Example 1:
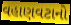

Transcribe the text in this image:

વહાણવટાનો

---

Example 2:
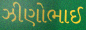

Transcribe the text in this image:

ઝીણોભાઈ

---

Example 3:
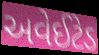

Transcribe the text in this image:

અવેઈટેડ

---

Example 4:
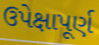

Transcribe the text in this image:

ઉપેક્ષાપૂર્ણ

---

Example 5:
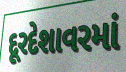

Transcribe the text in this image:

દૂરદેશાવરમાં